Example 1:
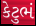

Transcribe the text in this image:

કેટુભં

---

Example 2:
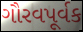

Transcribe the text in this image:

ગૌરવપૂર્વક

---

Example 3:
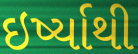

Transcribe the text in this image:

ઇર્ષ્યાથી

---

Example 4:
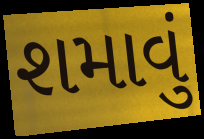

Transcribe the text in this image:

શમાવું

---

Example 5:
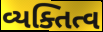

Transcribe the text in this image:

વ્યક્તિત્વ